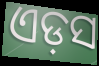
ଏଡ଼ସ